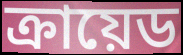
ক্রায়েড